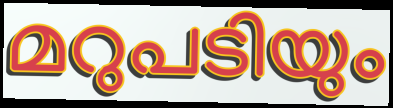
മറുപടിയും